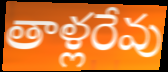
తాళ్లరేవు